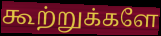
கூற்றுக்களே